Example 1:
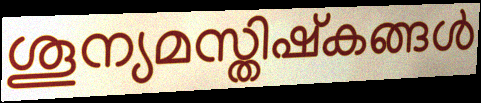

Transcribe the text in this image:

ശൂന്യമസ്തിഷ്കങ്ങൾ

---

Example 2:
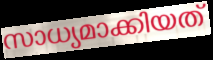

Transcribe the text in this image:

സാധ്യമാക്കിയത്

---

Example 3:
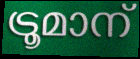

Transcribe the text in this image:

ട്രൂമാന്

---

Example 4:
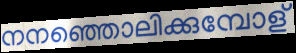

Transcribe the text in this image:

നനഞ്ഞൊലിക്കുമ്പോള്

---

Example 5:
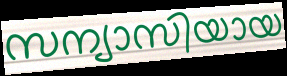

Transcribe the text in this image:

സന്യാസിയായ